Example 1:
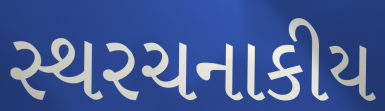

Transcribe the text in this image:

સ્થરચનાકીય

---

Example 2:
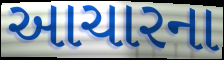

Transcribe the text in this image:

આચારના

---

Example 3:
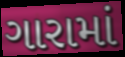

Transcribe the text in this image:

ગારામાં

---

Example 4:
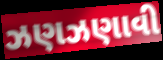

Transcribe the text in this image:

ઝણઝણાવી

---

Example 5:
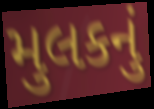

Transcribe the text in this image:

મુલકનું